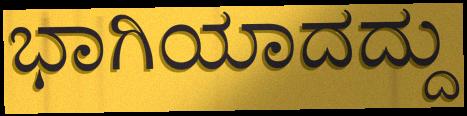
ಭಾಗಿಯಾದದ್ದು